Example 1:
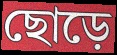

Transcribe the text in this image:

ছোড়ে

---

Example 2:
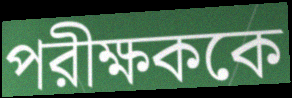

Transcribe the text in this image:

পরীক্ষককে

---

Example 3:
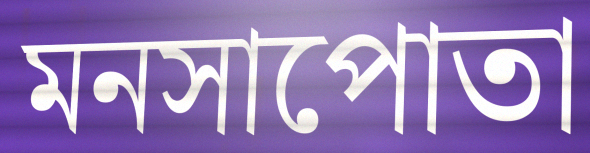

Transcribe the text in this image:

মনসাপোতা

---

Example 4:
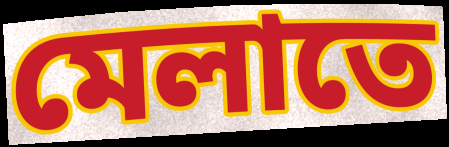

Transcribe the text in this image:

মেলাতে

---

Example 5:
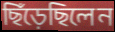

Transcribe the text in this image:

ছিঁড়েছিলেন